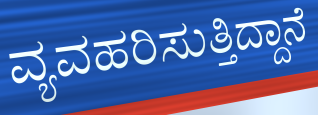
ವ್ಯವಹರಿಸುತ್ತಿದ್ದಾನೆ